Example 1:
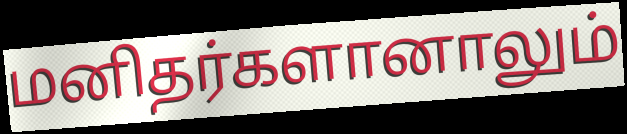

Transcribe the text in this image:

மனிதர்களானாலும்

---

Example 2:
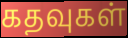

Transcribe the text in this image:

கதவுகள்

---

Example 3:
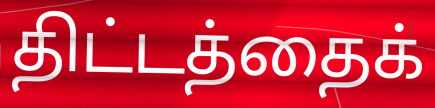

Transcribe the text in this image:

திட்டத்தைக்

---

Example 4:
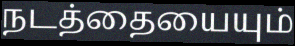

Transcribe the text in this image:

நடத்தையையும்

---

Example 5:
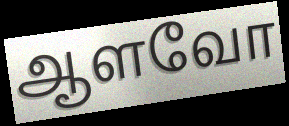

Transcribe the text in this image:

ஆளவோ